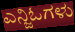
ಎನ್ಜಿಓಗಳು